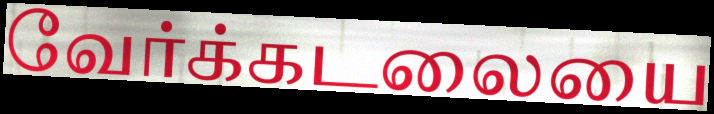
வேர்க்கடலையை